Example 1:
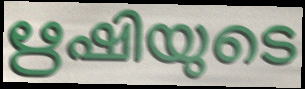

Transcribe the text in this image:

ഋഷിയുടെ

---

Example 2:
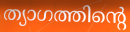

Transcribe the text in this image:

ത്യാഗത്തിന്റെ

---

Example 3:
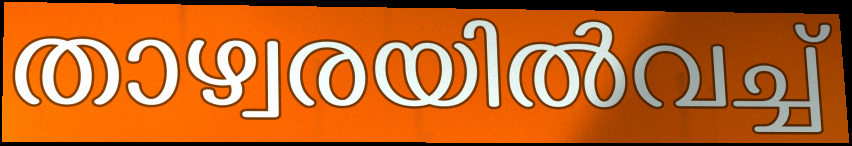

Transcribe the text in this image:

താഴ്വരയിൽവച്ച്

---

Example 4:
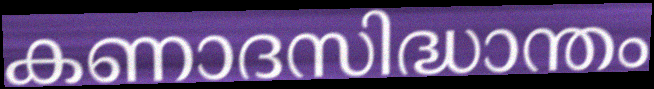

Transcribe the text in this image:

കണാദസിദ്ധാന്തം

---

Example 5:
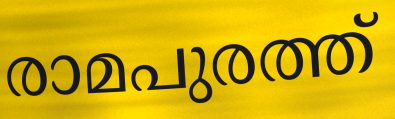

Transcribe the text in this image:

രാമപുരത്ത്